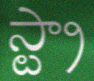
స్ట్రా